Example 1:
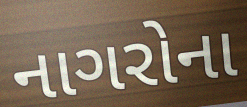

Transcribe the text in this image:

નાગરોના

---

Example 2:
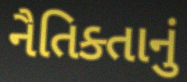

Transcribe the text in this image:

નૈતિક્તાનું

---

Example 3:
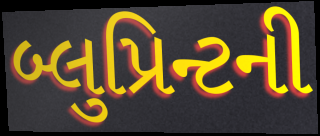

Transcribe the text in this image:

બ્લુપ્રિન્ટની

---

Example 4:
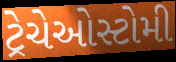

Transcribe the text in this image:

ટ્રેચેઓસ્ટોમી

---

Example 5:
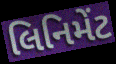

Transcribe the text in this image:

લિનિમેંટ